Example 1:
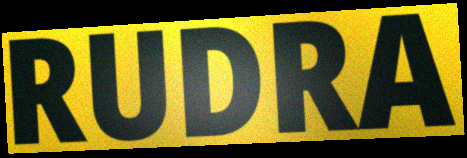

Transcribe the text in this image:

RUDRA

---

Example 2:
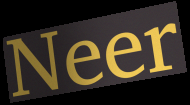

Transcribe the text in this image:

Neer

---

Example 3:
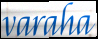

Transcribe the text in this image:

varaha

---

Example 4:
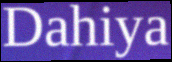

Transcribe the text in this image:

Dahiya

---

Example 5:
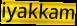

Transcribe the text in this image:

iyakkam